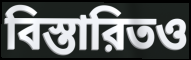
বিস্তারিতও